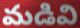
మడివి